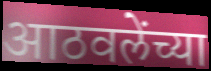
आठवलेंच्या